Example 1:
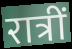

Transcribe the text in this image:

रात्रीं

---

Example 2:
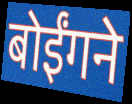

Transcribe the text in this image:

बोईंगने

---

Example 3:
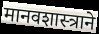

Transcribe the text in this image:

मानवशास्त्राने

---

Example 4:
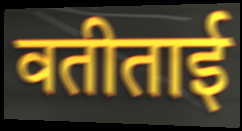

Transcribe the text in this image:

वतीताई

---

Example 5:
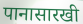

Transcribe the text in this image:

पानासारखी